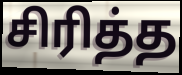
சிரித்த